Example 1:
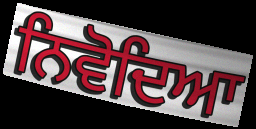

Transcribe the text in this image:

ਨਿਵੋਦਿਆ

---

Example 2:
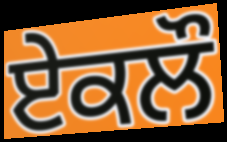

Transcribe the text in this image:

ਏਕਲੌ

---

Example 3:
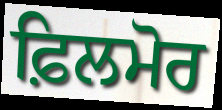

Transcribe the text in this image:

ਫ਼ਿਲਮੋਰ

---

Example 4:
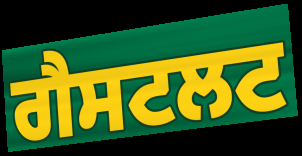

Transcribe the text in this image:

ਗੈਸਟਲਟ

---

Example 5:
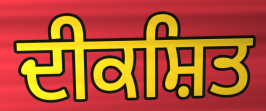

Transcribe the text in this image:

ਦੀਕਸ਼ਿਤ